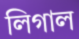
লিগাল